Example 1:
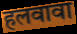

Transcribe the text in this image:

हलवावा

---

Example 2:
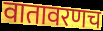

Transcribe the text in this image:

वातावरणच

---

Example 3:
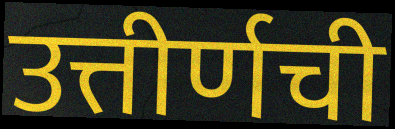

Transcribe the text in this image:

उत्तीर्णची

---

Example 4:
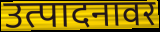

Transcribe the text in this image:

उत्पादनावर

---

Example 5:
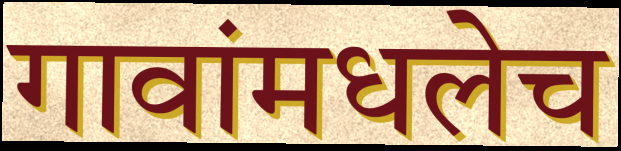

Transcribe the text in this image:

गावांमधलेच